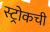
स्ट्रोकची